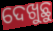
ଦେଖୁଛୁ